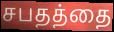
சபதத்தை